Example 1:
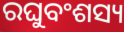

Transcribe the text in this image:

ରଘୁବଂଶସ୍ୟ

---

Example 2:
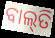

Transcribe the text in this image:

ବାଲ୍‌ତି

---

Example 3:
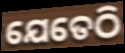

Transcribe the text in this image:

ଯେତେଠି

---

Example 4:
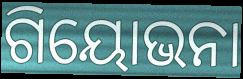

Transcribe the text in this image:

ଗିୟୋଭନା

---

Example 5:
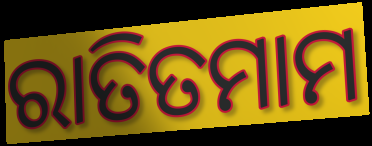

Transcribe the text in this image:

ରାତିତମାମ